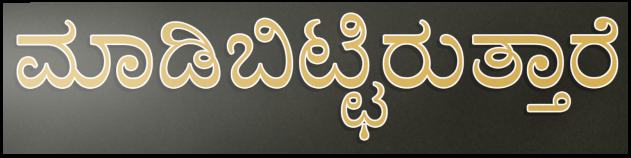
ಮಾಡಿಬಿಟ್ಟಿರುತ್ತಾರೆ